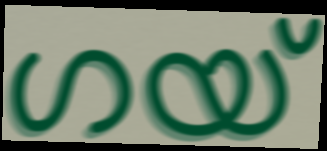
ഗയ്